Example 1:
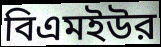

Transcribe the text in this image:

বিএমইউর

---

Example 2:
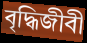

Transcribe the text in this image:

বৃদ্ধিজীবী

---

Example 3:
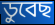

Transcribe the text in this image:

ডুবেছ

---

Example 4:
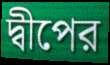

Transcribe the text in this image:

দ্বীপের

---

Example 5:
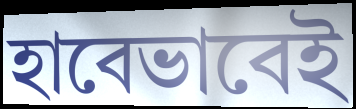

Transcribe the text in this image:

হাবেভাবেই